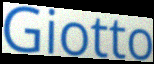
Giotto